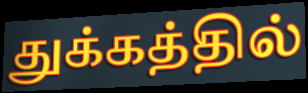
துக்கத்தில்